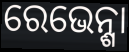
ରେଭେନ୍ଶା